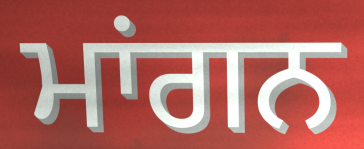
ਮਾਂਗਨ